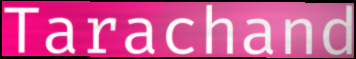
Tarachand